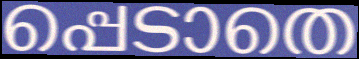
പ്പെടാതെ